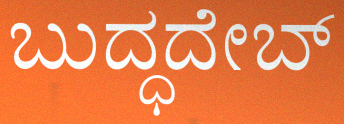
ಬುದ್ಧದೇಬ್